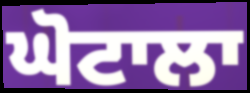
ਘੋਟਾਲਾ